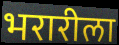
भरारीला